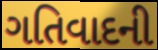
ગતિવાદની